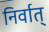
निर्वात्